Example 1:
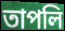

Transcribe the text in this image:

তাপলি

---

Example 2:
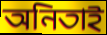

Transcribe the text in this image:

অনিতাই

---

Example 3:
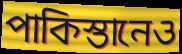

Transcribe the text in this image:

পাকিস্তানেও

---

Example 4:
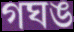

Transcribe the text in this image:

গঘঙ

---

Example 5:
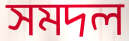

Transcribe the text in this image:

সমদল